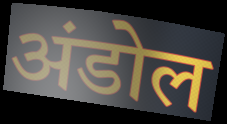
अंडोल